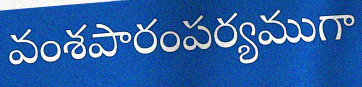
వంశపారంపర్యముగా